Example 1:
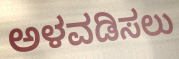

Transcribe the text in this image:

ಅಳವಡಿಸಲು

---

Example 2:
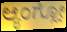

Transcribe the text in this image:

ಆ್ಯಂಗ್ಲೋ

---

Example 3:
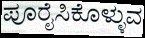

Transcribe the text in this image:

ಪೂರೈಸಿಕೊಳ್ಳುವ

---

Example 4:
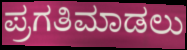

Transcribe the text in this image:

ಪ್ರಗತಿಮಾಡಲು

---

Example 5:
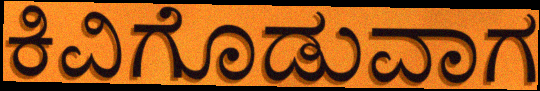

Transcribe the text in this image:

ಕಿವಿಗೊಡುವಾಗ